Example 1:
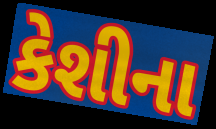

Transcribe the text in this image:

કેશીના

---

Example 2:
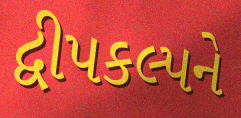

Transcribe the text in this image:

દ્વીપકલ્પને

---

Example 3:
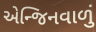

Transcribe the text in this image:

એન્જિનવાળું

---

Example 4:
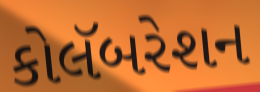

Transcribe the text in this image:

કોલૅબરેશન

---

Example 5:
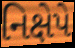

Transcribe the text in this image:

નિક્ષેપે